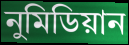
নুমিডিয়ান